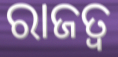
ରାଜତ୍ଵ